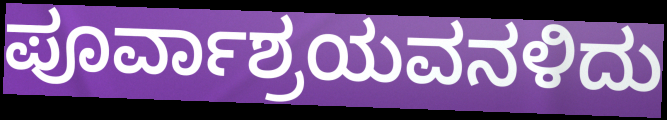
ಪೂರ್ವಾಶ್ರಯವನಳಿದು